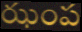
ఝంప